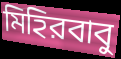
মিহিরবাবু